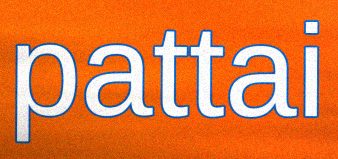
pattai